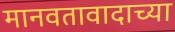
मानवतावादाच्या